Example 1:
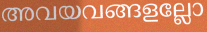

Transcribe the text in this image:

അവയവങ്ങളല്ലോ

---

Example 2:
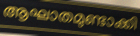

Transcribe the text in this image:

ആഘാതമുണ്ടാക്കി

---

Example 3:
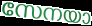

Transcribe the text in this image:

സേനയാ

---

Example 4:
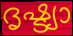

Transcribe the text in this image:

ദൃഷ്ട്യാ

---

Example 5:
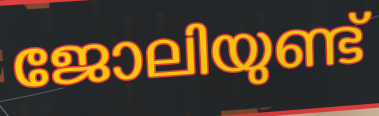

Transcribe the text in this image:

ജോലിയുണ്ട്